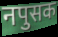
नपुसक